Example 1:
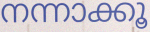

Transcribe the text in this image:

നന്നാക്കൂ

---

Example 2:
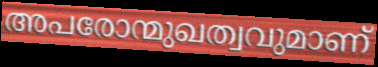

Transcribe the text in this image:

അപരോന്മുഖത്വവുമാണ്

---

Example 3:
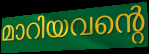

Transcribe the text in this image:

മാറിയവന്റെ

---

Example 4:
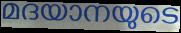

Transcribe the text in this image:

മദയാനയുടെ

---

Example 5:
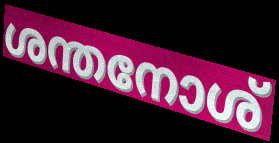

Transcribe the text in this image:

ശന്തനോശ്